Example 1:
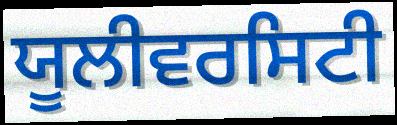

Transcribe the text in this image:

ਯੂਲੀਵਰਸਿਟੀ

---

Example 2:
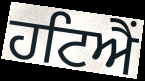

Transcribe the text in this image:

ਹਟਿਐਂ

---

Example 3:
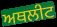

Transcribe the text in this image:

ਅਥਲੀਟ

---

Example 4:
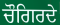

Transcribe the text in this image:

ਚੌਗਿਰਦੇ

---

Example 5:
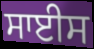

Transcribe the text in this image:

ਸਾਈਸ